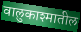
वालुकाश्मातील